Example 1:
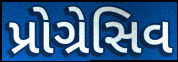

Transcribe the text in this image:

પ્રોગ્રેસિવ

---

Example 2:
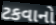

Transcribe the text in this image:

ટકવાનો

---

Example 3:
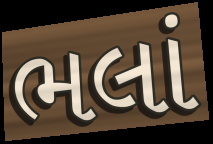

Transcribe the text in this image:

ભલાં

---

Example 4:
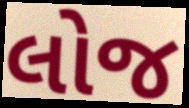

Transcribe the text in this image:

લોજ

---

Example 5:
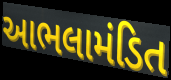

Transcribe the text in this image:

આભલામંડિત